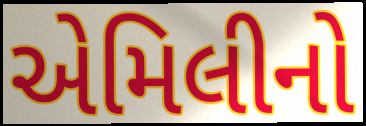
એમિલીનો